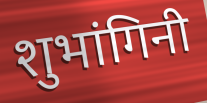
शुभांगिनी